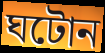
ঘটোন